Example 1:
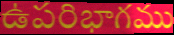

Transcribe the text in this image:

ఉపరిభాగము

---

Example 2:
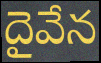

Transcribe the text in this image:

దైవేన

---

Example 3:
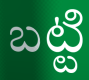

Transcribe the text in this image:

బట్టి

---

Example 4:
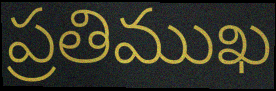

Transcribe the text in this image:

ప్రతిముఖ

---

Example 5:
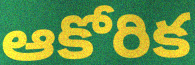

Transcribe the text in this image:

ఆకోరిక